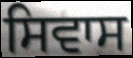
ਸਿਵਾਸ